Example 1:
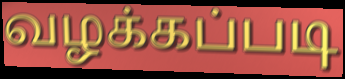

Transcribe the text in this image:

வழக்கப்படி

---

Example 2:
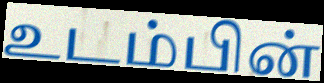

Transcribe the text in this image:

உடம்பின்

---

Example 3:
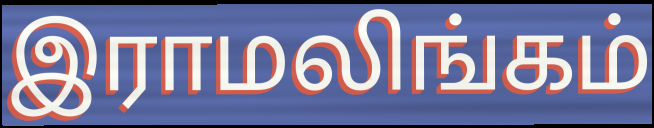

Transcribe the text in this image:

இராமலிங்கம்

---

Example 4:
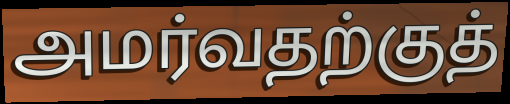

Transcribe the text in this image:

அமர்வதற்குத்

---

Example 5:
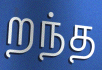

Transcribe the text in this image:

றந்த